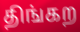
திங்கற